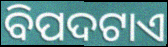
ବିପଦଟାଏ